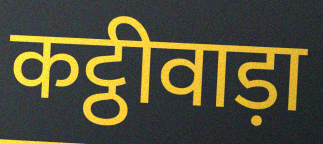
कट्ठीवाड़ा